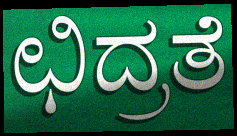
ಛಿದ್ರತೆ